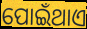
ପୋଇଁଥାଏ